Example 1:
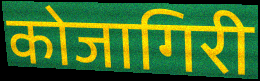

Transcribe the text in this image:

कोजागिरी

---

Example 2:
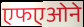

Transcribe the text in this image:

एफएओने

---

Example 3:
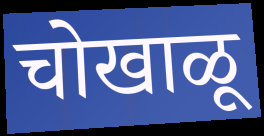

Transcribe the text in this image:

चोखाळू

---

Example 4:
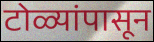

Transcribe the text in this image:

टोळ्यांपासून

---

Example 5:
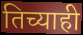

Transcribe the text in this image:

तिच्याही